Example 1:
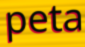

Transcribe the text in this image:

peta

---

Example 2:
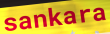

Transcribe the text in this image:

sankara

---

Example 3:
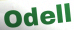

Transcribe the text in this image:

Odell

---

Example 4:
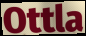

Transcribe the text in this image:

Ottla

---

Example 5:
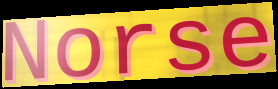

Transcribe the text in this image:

Norse